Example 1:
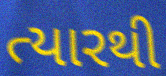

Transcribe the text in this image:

ત્યારથી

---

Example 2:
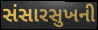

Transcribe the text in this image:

સંસારસુખની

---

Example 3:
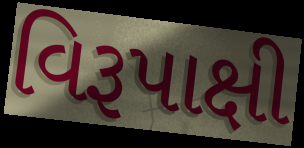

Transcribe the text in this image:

વિરૂપાક્ષી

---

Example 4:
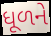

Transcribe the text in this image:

ધૂળને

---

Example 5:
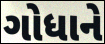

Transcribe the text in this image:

ગોધાને